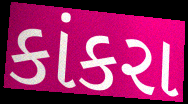
કાંકરા